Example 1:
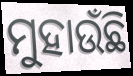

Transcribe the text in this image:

ମୁହାଉଁଛି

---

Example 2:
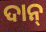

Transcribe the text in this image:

ଦାନ୍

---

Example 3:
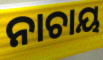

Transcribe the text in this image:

ନାଚାୟ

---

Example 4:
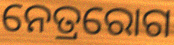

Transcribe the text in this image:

ନେତ୍ରରୋଗ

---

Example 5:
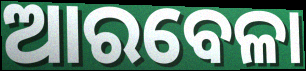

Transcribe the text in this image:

ଆରବେଳା